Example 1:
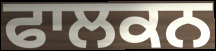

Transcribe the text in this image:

ਫਾਲਕਨ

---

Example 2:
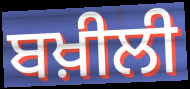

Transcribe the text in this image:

ਬਖ਼ੀਲੀ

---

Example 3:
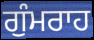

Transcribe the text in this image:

ਗੁੰਮਰਾਹ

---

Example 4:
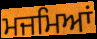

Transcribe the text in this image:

ਮਜਮਿਆਂ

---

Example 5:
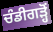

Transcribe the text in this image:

ਚੰਡੀਗੜ੍ਹੋਂ